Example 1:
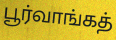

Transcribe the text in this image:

பூர்வாங்கத்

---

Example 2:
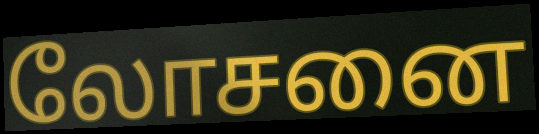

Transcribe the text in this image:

லோசனை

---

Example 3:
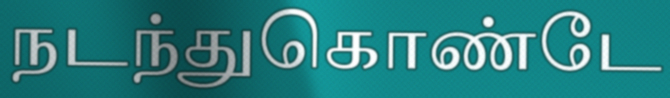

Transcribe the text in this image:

நடந்துகொண்டே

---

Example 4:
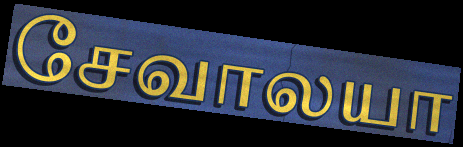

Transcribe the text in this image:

சேவாலயா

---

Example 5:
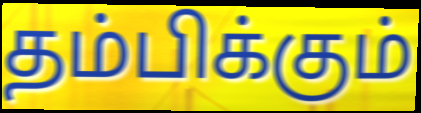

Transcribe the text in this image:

தம்பிக்கும்